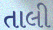
તાલી